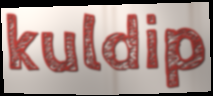
kuldip